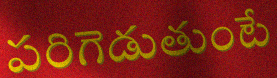
పరిగెడుతుంటే